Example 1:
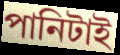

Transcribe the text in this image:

পানিটাই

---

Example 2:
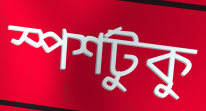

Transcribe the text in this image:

স্পর্শটুকু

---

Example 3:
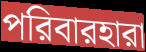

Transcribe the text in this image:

পরিবারহারা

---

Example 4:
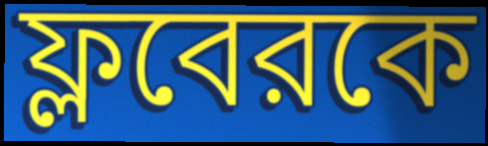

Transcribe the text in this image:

ফ্লবেরকে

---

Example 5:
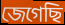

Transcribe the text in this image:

জেগেছি